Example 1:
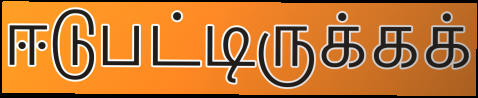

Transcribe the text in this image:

ஈடுபட்டிருக்கக்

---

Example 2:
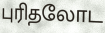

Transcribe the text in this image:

புரிதலோட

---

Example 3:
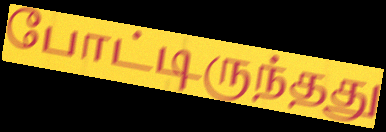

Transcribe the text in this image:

போட்டிருந்தது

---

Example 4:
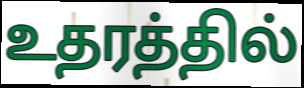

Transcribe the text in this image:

உதரத்தில்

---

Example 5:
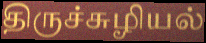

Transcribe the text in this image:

திருச்சுழியல்